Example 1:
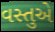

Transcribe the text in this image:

વસ્તુએ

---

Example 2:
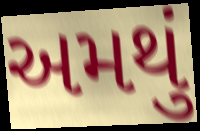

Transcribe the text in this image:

અમથું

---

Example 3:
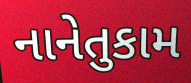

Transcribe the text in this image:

નાનેતુકામ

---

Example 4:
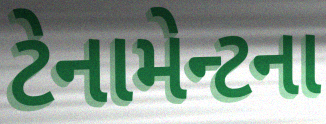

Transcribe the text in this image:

ટેનામેન્ટના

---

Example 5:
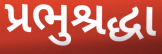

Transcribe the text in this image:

પ્રભુશ્રદ્ધા